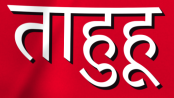
ताहुहू